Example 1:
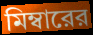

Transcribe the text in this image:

মিম্বারের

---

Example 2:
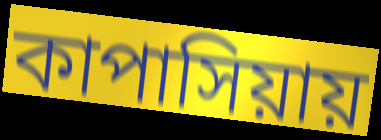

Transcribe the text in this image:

কাপাসিয়ায়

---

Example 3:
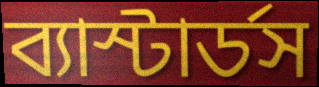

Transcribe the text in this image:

ব্যাস্টার্ডস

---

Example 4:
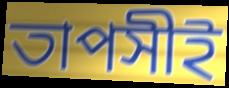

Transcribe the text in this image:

তাপসীই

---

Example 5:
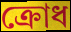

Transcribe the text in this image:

ক্রোধ